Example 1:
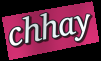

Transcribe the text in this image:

chhay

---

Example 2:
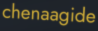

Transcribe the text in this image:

chenaagide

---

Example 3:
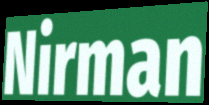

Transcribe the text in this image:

Nirman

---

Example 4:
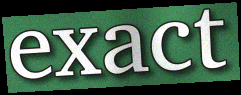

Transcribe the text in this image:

exact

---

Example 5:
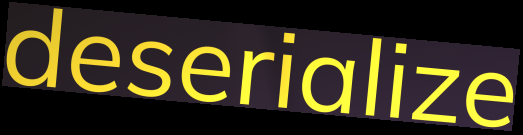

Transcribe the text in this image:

deserialize